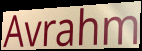
Avrahm